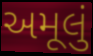
અમૂલું